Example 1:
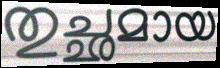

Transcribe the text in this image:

തുച്ഛമായ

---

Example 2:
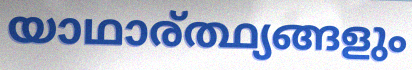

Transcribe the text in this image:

യാഥാര്ത്ഥ്യങ്ങളും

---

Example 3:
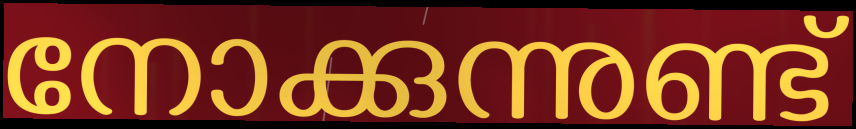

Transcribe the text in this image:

നോക്കുന്നുണ്ട്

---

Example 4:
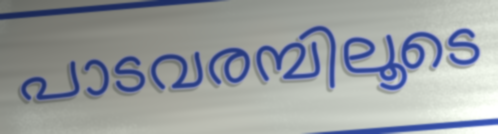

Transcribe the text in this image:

പാടവരമ്പിലൂടെ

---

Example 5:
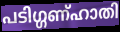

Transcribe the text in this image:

പടിഗ്ഗണ്ഹാതി